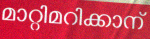
മാറ്റിമറിക്കാന്